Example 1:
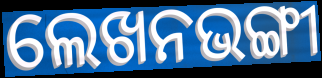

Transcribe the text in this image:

ଲେଖନଭଙ୍ଗୀ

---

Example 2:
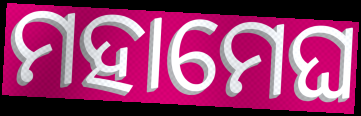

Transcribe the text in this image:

ମହାମେଘ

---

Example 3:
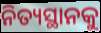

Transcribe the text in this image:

ନିତ୍ୟସ୍ଥାନକୁ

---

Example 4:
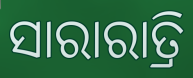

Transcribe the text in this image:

ସାରାରାତ୍ରି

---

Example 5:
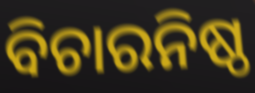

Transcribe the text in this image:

ବିଚାରନିଷ୍ଠ